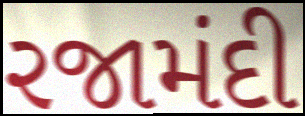
રજામંદી